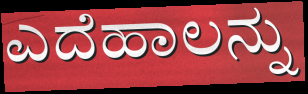
ಎದೆಹಾಲನ್ನು